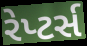
રેપ્ટર્સ